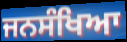
ਜਨਸੰਖਿਆ